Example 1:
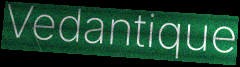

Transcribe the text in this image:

Vedantique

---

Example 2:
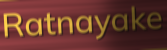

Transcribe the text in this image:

Ratnayake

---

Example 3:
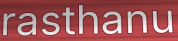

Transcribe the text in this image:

rasthanu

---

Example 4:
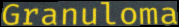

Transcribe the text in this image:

Granuloma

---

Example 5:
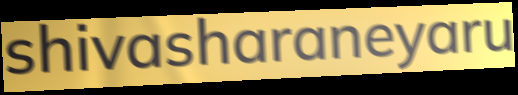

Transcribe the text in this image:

shivasharaneyaru